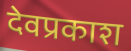
देवप्रकाश